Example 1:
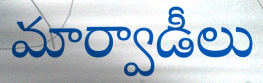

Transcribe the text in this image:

మార్వాడీలు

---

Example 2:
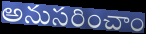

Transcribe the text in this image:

అనుసరించాం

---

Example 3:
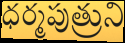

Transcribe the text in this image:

ధర్మపుత్రుని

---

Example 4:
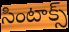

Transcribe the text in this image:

సింటాక్స్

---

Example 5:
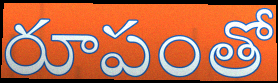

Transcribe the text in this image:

రూపంతో